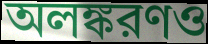
অলঙ্করণও